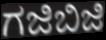
ಗಜಿಬಿಜಿ